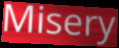
Misery